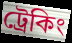
ট্ৰেকিং